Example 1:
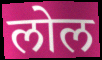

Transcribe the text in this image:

लोल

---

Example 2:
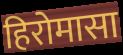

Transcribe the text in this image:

हिरोमासा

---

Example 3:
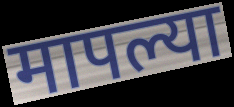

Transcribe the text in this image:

मापल्या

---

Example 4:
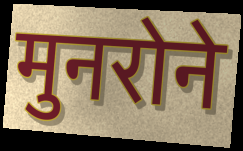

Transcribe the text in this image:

मुनरोने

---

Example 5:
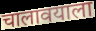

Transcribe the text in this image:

चालावयाला